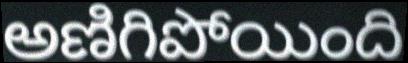
అణిగిపోయింది